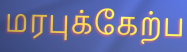
மரபுக்கேற்ப